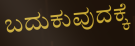
ಬದುಕುವುದಕ್ಕೆ